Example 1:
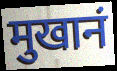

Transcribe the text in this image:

मुखानं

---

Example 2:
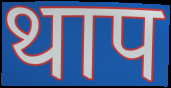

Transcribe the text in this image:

थाप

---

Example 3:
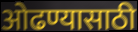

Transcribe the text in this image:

ओढण्यासाठी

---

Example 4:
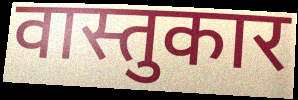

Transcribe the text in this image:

वास्तुकार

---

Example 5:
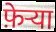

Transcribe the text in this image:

फ़ेर्‍या